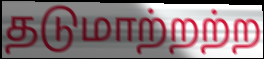
தடுமாற்றற்ற